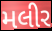
મલીર